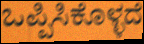
ಒಪ್ಪಿಸಿಕೊಳ್ಳದೆ